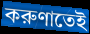
করুণাতেই